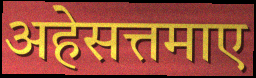
अहेसत्तमाए